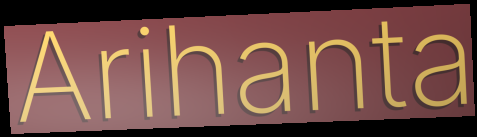
Arihanta